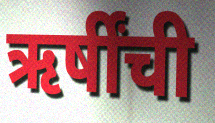
ऋर्षींची